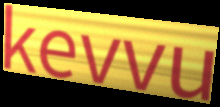
kevvu